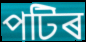
পটিৰ